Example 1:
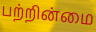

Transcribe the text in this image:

பற்றின்மை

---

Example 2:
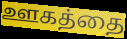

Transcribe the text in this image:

ஊகத்தை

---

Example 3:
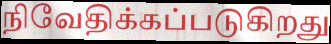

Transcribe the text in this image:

நிவேதிக்கப்படுகிறது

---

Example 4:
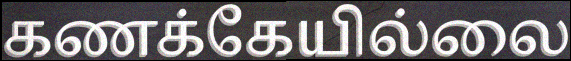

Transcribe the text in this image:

கணக்கேயில்லை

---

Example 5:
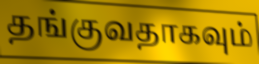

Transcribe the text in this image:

தங்குவதாகவும்